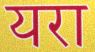
यरा